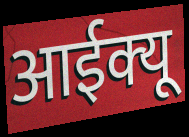
आईक्‍यू